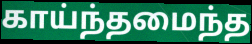
காய்ந்தமைந்த